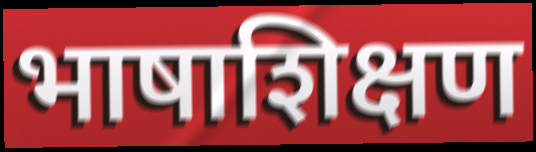
भाषाशिक्षण